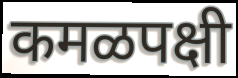
कमळपक्षी